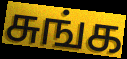
சுங்க